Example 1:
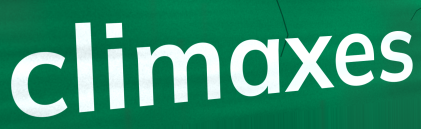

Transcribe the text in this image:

climaxes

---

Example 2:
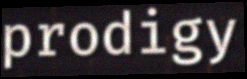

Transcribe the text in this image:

prodigy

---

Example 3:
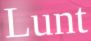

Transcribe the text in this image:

Lunt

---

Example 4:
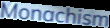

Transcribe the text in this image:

Monachism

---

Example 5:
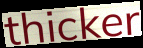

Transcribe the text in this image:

thicker